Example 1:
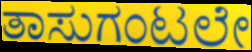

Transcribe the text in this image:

ತಾಸುಗಂಟಲೇ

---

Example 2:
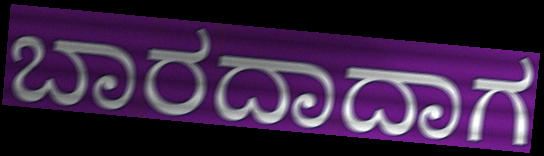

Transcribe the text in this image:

ಬಾರದಾದಾಗ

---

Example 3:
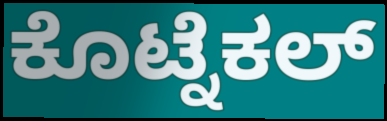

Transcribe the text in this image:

ಕೊಟ್ನೆಕಲ್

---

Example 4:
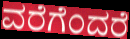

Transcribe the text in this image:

ವರೆಗೆಂದರೆ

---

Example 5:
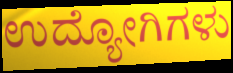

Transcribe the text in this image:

ಉದ್ಯೋಗಿಗಳು